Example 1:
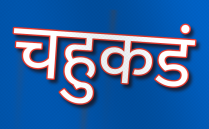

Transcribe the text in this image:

चहुकडं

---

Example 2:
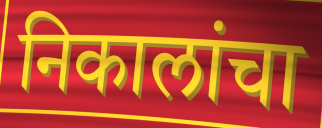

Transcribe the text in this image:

निकालांचा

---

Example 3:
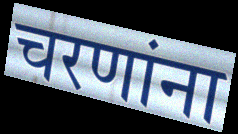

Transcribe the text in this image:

चरणांना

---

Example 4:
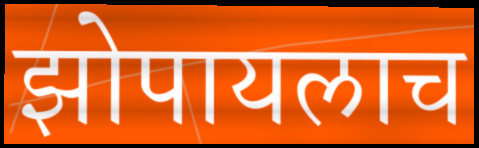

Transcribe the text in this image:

झोपायलाच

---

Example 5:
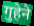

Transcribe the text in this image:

गुहेने